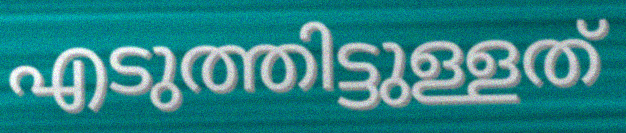
എടുത്തിട്ടുള്ളത്